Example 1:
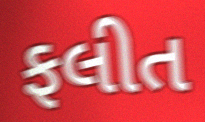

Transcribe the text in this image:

ફલીત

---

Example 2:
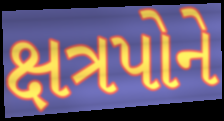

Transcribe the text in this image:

ક્ષત્રપોને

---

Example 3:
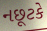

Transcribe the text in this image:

નછૂટકે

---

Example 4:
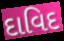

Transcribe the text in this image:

દાવિદ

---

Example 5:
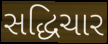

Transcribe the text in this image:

સદ્ધિચાર